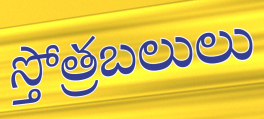
స్తోత్రబలులు